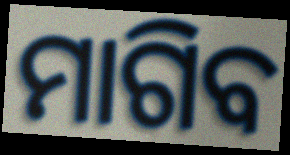
ମାଗିବ